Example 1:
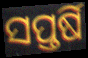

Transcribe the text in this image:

ସପ୍ତର୍ଷି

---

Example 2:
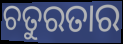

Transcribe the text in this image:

ଚତୁରତାର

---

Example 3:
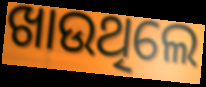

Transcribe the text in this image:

ଖାଉଥିଲେ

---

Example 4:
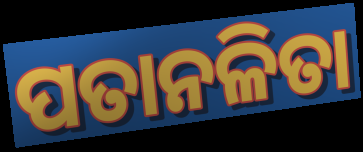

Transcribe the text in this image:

ପତାନଳିତା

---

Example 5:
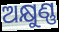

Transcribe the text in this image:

ଅକ୍ଷୁଣ୍ଣ